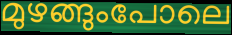
മുഴങ്ങുംപോലെ